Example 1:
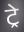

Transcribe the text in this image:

ट्रे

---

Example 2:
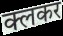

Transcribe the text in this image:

क्लकर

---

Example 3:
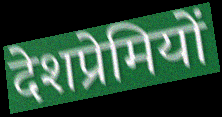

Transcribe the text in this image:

देशप्रेमियों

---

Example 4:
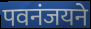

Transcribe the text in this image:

पवनंजयने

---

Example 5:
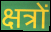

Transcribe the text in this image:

क्षत्रों